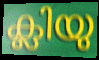
ക്ലിയു